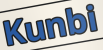
Kunbi